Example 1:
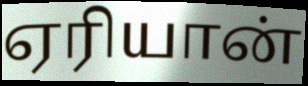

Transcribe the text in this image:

ஏரியான்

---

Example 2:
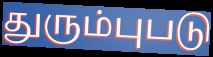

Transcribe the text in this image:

துரும்புபடு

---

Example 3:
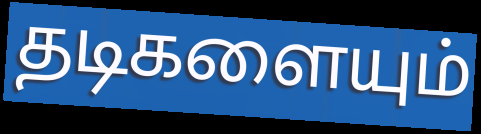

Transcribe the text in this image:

தடிகளையும்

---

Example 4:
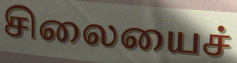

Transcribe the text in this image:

சிலையைச்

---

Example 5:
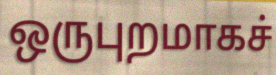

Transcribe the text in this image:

ஒருபுறமாகச்